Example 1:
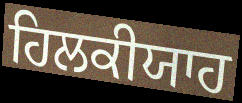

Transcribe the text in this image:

ਹਿਲਕੀਯਾਹ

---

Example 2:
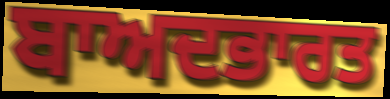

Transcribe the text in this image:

ਬਾਅਦਭਾਰਤ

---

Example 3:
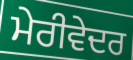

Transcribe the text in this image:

ਮੇਰੀਵੇਦਰ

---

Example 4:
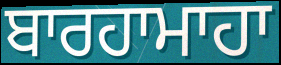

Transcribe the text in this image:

ਬਾਰਹਾਮਾਹਾ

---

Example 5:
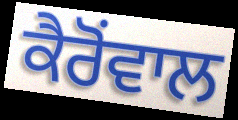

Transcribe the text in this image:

ਕੈਰੋਂਵਾਲ